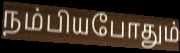
நம்பியபோதும்